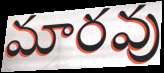
మారవు